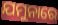
ଯମୁନାରେ